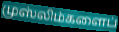
முஸ்லிம்களைப்